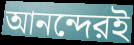
আনন্দেরই